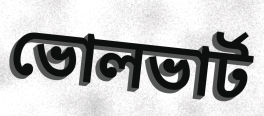
ভোলভার্ট